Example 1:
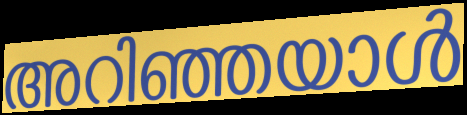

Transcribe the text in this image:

അറിഞ്ഞയാൾ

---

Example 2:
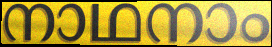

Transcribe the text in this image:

നാഥനാം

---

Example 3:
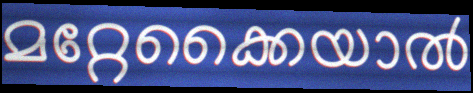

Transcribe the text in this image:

മറ്റേക്കൈയാൽ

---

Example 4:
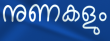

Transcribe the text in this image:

നുണകളും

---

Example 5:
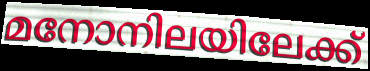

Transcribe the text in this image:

മനോനിലയിലേക്ക്